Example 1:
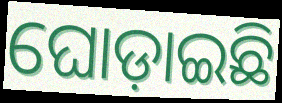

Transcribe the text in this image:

ଘୋଡ଼ାଇଛି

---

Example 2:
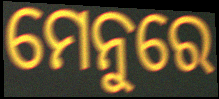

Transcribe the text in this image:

ମେନୁରେ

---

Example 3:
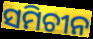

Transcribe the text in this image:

ସମିଚୀନ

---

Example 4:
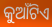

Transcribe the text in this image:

କୁଆଁଟିଏ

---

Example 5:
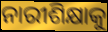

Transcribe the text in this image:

ନାରୀଶିକ୍ଷାକୁ